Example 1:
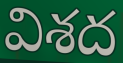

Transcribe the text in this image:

విశద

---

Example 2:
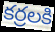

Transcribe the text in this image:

కర్రలకి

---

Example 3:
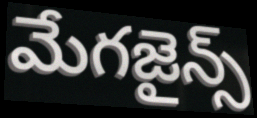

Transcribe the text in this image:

మేగజైన్స్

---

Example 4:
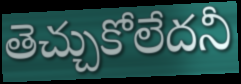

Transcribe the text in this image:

తెచ్చుకోలేదనీ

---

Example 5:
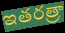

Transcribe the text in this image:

ఇతరత్రా